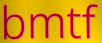
bmtf